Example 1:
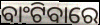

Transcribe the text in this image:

ବାଂଟିବାରେ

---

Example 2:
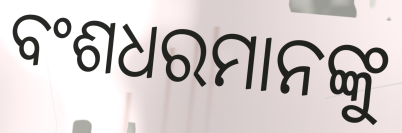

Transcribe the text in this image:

ବଂଶଧରମାନଙ୍କୁ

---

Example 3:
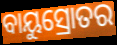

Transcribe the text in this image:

ବାୟୁସ୍ରୋତର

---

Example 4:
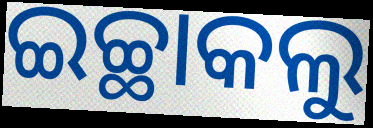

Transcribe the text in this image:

ଇଚ୍ଛାକଲୁ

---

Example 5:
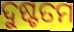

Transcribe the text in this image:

ଦୁଷ୍ଟତମ